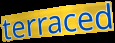
terraced